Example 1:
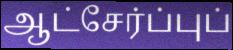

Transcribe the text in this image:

ஆட்சேர்ப்புப்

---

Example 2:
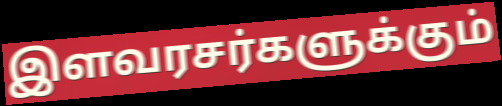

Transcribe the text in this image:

இளவரசர்களுக்கும்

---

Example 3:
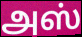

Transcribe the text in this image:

அஸ்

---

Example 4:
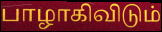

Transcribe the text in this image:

பாழாகிவிடும்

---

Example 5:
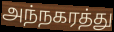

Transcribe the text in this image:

அந்நகரத்து